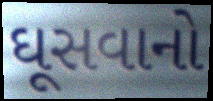
ઘૂસવાનો